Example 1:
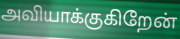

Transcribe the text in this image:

அவியாக்குகிறேன்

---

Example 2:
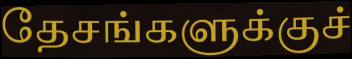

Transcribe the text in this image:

தேசங்களுக்குச்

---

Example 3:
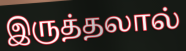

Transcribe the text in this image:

இருத்தலால்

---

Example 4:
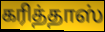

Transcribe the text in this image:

கரித்தாஸ்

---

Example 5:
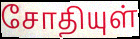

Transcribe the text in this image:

சோதியுள்